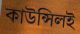
কাউন্সিলই